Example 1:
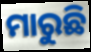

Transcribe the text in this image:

ମାରୁଛି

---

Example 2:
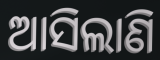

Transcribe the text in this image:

ଆସିଲାଣି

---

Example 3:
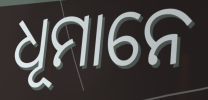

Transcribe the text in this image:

ଧୂମାନେ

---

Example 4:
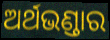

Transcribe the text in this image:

ଅର୍ଥଭଣ୍ଡାର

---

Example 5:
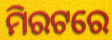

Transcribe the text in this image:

ମିରଟରେ